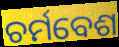
ଚର୍ମବେଶ